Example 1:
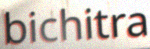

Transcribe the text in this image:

bichitra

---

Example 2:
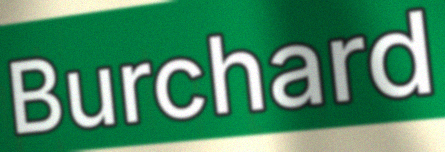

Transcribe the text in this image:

Burchard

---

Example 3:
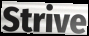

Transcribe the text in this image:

Strive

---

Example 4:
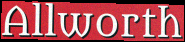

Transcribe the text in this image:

Allworth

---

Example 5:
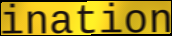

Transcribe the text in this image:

ination